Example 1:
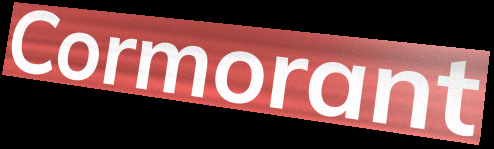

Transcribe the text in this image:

Cormorant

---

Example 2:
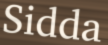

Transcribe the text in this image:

Sidda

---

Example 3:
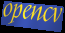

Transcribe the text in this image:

opencv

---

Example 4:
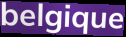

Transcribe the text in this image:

belgique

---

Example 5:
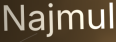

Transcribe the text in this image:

Najmul